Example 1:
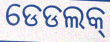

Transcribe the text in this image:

ଡେଡଲକ୍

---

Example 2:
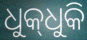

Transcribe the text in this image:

ଧୁକ୍‌ଧୁକି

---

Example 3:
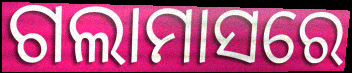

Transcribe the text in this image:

ଗଲାମାସରେ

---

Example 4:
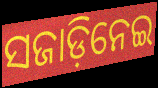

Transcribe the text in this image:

ସଜାଡ଼ିନେଇ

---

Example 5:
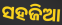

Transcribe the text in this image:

ସହଜିଆ